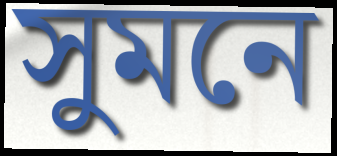
সুমনে